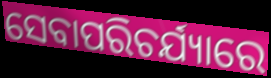
ସେବାପରିଚର୍ଯ୍ୟାରେ